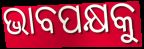
ଭାବପକ୍ଷକୁ